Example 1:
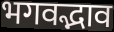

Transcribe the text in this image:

भगवद्भाव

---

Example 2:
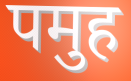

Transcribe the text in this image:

पमुह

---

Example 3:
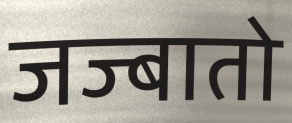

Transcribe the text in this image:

जज्बातो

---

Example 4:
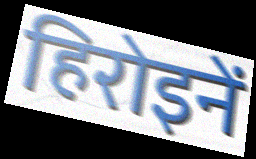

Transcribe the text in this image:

हिरोइनें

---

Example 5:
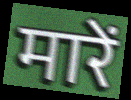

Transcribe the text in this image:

मारें